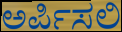
ಅರ್ಪಿಸಲಿ